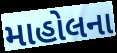
માહોલના